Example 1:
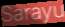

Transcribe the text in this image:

Sarayu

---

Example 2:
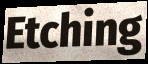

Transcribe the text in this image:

Etching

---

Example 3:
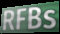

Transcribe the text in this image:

RFBs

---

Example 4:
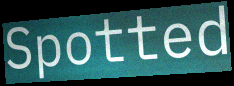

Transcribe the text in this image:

Spotted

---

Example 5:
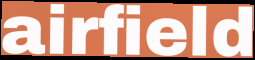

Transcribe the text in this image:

airfield